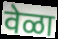
वेळा